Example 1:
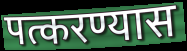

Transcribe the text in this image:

पत्करण्यास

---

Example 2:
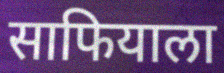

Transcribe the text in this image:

साफियाला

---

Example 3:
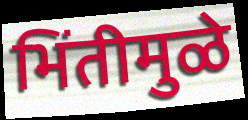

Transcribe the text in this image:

भिंतीमुळे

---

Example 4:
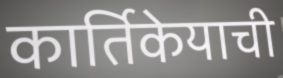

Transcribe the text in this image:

कार्तिकेयाची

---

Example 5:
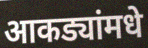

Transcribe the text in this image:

आकड्यांमधे